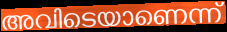
അവിടെയാണെന്ന്